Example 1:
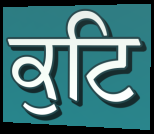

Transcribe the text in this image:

ਕੁਟਿ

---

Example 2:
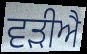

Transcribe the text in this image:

ਵੜੀਐ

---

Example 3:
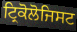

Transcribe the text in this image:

ਟ੍ਰਿਕੋਲੋਜਿਸਟ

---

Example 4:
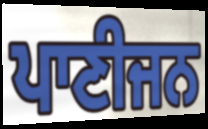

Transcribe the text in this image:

ਪਾਣੀਜਨ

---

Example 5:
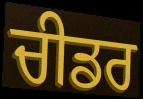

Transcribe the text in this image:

ਚੀਡਰ